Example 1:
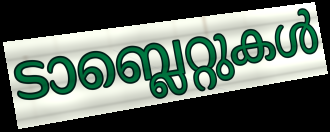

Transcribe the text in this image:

ടാബ്ലെറ്റുകൾ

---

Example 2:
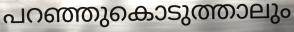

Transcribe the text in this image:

പറഞ്ഞുകൊടുത്താലും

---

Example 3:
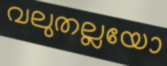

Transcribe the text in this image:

വലുതല്ലയോ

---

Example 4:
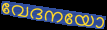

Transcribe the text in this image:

വേദനയോ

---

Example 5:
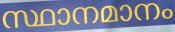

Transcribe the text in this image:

സ്ഥാനമാനം